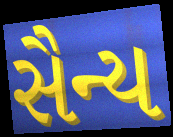
સૈન્ય